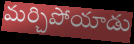
మర్చిపోయాడు